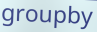
groupby